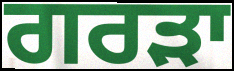
ਗਰੜਾ